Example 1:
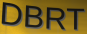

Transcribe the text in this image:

DBRT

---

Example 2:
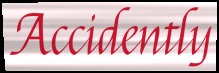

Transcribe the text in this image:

Accidently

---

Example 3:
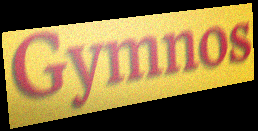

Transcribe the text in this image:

Gymnos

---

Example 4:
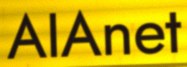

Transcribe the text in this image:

AIAnet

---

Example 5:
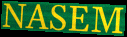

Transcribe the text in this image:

NASEM